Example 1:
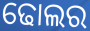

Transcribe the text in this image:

ଢୋଲର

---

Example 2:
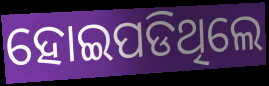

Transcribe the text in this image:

ହୋଇପଡିଥିଲେ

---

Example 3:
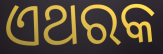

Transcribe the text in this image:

ଏଥରକ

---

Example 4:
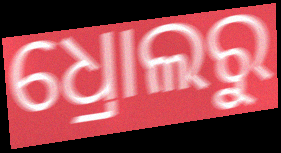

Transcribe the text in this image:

ଧ୍ରୋଲରୁ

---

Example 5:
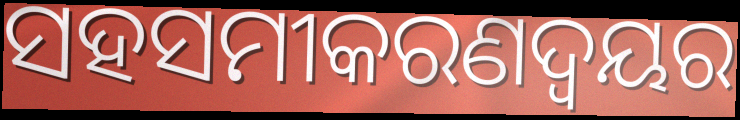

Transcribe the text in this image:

ସହସମୀକରଣଦ୍ୱୟର